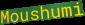
Moushumi